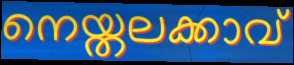
നെയ്തലക്കാവ്